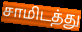
சாமிடத்து